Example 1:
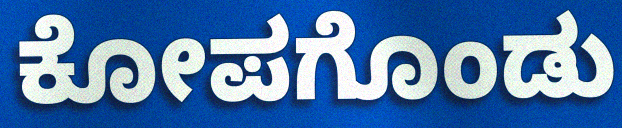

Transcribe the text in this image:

ಕೋಪಗೊಂಡು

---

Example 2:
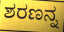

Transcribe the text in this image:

ಶರಣನ್ನ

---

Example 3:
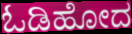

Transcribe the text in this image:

ಓಡಿಹೋದ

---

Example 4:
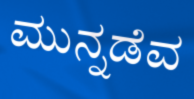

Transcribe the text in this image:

ಮುನ್ನಡೆವ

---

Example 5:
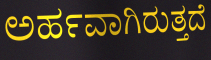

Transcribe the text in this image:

ಅರ್ಹವಾಗಿರುತ್ತದೆ